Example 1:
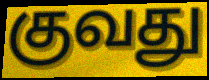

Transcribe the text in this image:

குவது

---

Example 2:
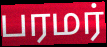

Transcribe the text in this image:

பரமர்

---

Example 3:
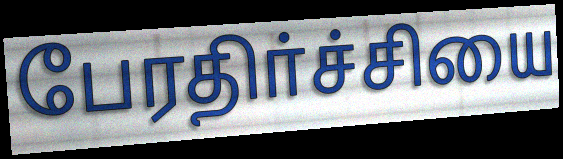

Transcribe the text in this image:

பேரதிர்ச்சியை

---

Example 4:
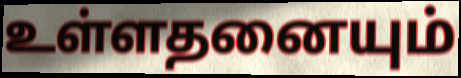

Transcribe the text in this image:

உள்ளதனையும்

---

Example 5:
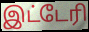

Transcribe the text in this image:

இட்டேரி